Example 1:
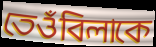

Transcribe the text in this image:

তেওঁবিলাকে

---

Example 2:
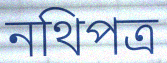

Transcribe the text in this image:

নথিপত্ৰ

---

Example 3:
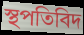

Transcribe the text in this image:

স্থপতিবিদ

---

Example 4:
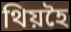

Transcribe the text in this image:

থিয়হৈ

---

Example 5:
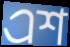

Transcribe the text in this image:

এশ